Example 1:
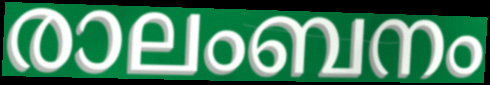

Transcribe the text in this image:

രാലംബനം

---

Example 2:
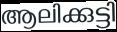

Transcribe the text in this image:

ആലിക്കുട്ടി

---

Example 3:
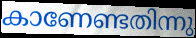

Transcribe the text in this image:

കാണേണ്ടതിന്നു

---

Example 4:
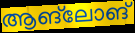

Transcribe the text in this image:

ആങ്‌ലോങ്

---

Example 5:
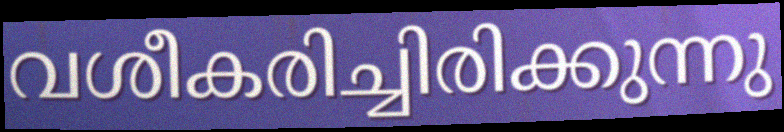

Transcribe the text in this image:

വശീകരിച്ചിരിക്കുന്നു